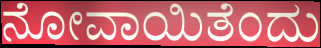
ನೋವಾಯಿತೆಂದು